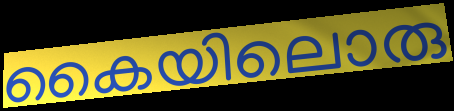
കൈയിലൊരു